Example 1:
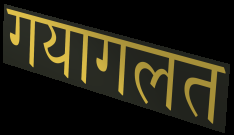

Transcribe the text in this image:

गयागलत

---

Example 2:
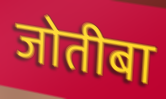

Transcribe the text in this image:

जोतीबा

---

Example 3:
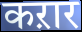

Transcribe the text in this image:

कऱार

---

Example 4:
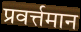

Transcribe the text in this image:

प्रवर्त्तमान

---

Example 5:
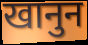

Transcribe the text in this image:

खानुन